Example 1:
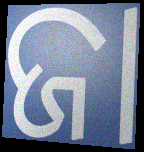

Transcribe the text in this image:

ଜା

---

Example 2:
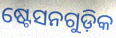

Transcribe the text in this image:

ଷ୍ଟେସନଗୁଡ଼ିକ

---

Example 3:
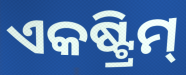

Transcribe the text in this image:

ଏକଷ୍ଟ୍ରିମ୍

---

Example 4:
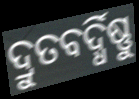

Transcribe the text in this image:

ଦ୍ରୁତବର୍ଦ୍ଧିଷ୍ଣୁ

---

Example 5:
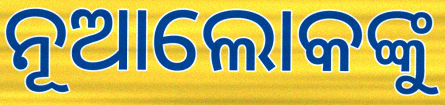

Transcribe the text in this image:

ନୂଆଲୋକଙ୍କୁ